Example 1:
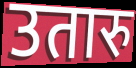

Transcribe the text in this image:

उतारु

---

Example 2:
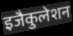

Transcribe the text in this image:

इजैकुलेशन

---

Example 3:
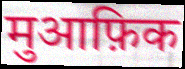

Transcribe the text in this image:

मुआफ़िक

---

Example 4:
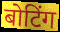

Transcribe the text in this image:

बोटिंग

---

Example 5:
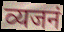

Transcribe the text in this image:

व्यजनं